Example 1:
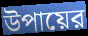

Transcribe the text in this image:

উপায়ের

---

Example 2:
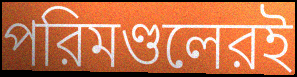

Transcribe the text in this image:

পরিমণ্ডলেরই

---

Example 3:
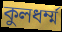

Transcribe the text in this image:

কুলধর্ম্ম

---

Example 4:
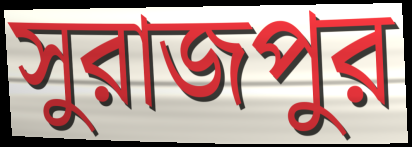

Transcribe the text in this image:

সুরাজপুর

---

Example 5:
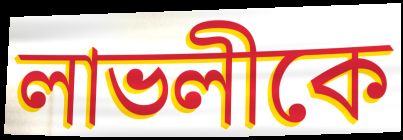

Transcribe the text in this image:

লাভলীকে